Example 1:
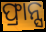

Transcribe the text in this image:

ଫ୍ରାନ୍ସ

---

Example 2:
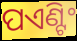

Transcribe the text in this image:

ପଏଣ୍ଟିଂ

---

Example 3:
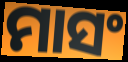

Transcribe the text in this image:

ମାସଂ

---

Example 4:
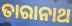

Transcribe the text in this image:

ତାରାନାଥ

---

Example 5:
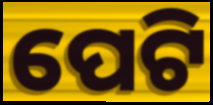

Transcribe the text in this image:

ପେଟି